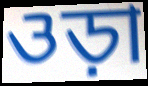
ওড়া